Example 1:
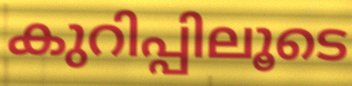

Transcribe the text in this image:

കുറിപ്പിലൂടെ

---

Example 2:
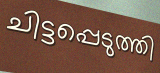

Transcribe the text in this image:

ചിട്ടപ്പെടുത്തി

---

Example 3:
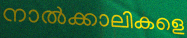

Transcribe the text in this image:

നാൽക്കാലികളെ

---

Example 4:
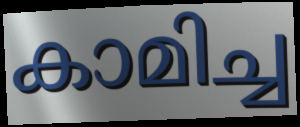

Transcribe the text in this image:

കാമിച്ച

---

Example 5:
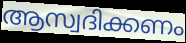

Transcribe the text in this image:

ആസ്വദിക്കണം